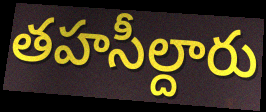
తహసీల్దారు